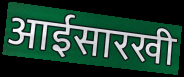
आईसारखी